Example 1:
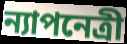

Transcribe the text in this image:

ন্যাপনেত্রী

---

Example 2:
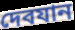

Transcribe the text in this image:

দেবযান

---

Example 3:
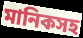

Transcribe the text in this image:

মানিকসহ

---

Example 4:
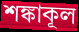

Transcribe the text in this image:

শঙ্কাকূল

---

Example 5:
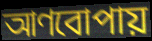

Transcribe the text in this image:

আণবোপায়